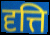
दृत्ति